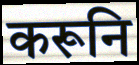
करूनि